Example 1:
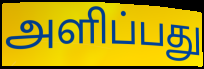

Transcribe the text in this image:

அளிப்பது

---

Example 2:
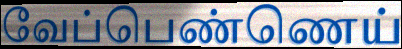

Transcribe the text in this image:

வேப்பெண்ணெய்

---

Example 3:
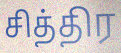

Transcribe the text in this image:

சித்திர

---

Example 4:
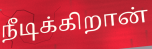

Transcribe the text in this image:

நீடிக்கிறான்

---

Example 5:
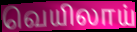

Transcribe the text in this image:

வெயிலாய்